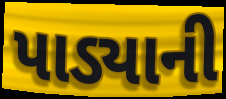
પાડ્યાની